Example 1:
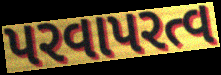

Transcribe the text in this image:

પરવાપરત્વ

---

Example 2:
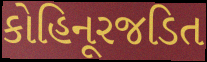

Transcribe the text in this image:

કોહિનૂરજડિત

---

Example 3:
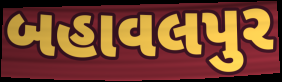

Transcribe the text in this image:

બહાવલપુર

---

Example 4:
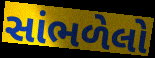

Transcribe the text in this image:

સાંભળેલો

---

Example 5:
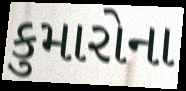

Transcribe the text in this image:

કુમારોના